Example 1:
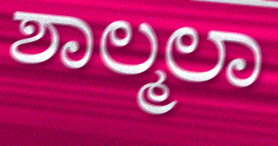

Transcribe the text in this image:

ಶಾಲ್ಮಲಾ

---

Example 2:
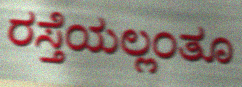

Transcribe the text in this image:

ರಸ್ತೆಯಲ್ಲಂತೂ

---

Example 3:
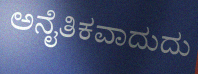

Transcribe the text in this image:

ಅನೈತಿಕವಾದುದು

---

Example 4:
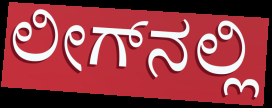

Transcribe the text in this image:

ಲೀಗ್‌ನಲ್ಲಿ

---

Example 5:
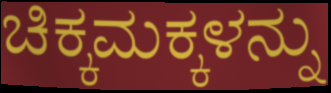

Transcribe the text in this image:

ಚಿಕ್ಕಮಕ್ಕಳನ್ನು